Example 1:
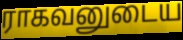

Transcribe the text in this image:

ராகவனுடைய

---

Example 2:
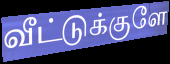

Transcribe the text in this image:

வீட்டுக்குளே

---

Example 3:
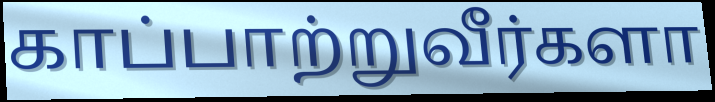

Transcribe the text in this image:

காப்பாற்றுவீர்களா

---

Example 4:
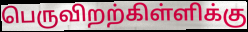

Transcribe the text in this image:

பெருவிறற்கிள்ளிக்கு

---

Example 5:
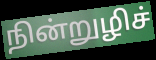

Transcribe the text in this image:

நின்றுழிச்